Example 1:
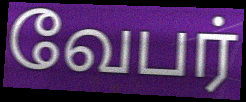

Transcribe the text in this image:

வேபர்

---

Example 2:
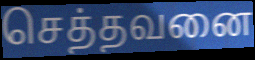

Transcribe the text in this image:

செத்தவனை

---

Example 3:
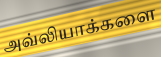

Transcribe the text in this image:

அவ்லியாக்களை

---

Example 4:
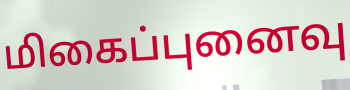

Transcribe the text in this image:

மிகைப்புனைவு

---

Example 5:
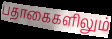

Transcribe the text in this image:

பதாகைகளிலும்